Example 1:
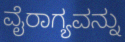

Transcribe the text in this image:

ವೈರಾಗ್ಯವನ್ನು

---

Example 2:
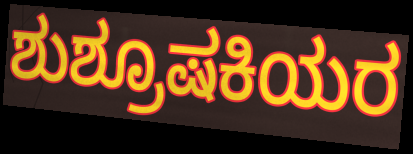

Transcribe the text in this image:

ಶುಶ್ರೂಷಕಿಯರ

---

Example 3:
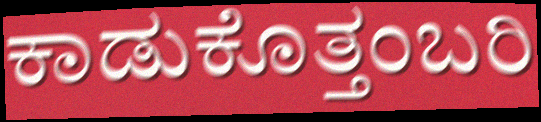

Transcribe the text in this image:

ಕಾಡುಕೊತ್ತಂಬರಿ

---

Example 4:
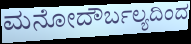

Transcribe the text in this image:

ಮನೋದೌರ್ಬಲ್ಯದಿಂದ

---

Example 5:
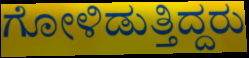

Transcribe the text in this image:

ಗೋಳಿಡುತ್ತಿದ್ದರು